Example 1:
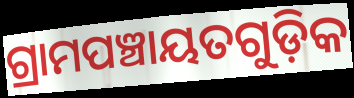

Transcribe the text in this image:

ଗ୍ରାମପଞ୍ଚାୟତଗୁଡ଼ିକ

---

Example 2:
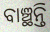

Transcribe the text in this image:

ବାଞ୍ଛନ୍ତି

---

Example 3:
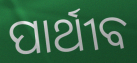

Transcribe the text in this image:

ପାର୍ଥୀବ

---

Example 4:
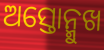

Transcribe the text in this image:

ଅସ୍ତୋନ୍ମୁଖ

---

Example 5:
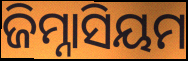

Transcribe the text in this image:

ଜିମ୍ନାସିୟମ